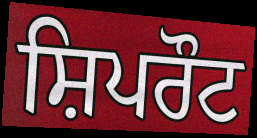
ਸ਼ਿਪਰੌਟ